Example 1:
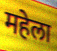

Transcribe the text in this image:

महेला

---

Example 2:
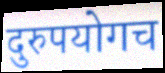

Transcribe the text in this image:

दुरुपयोगच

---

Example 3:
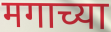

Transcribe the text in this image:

मगाच्या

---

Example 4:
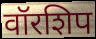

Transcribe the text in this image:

वॉरशिप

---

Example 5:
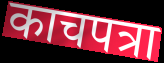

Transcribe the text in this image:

काचपत्रा